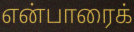
என்பாரைக்